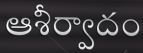
ఆశీర్వాదం